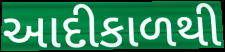
આદીકાળથી